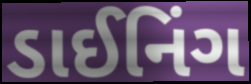
ડાઈનિંગ